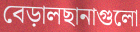
বেড়ালছানাগুলো